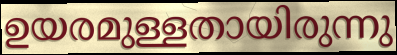
ഉയരമുള്ളതായിരുന്നു